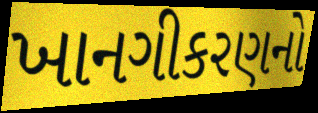
ખાનગીકરણનો